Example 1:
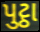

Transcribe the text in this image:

પુટ્ઠા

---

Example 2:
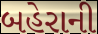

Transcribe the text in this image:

બહેરાની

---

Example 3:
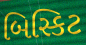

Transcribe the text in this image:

બિસ્કિટ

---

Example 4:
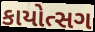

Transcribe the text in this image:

કાયોત્સગ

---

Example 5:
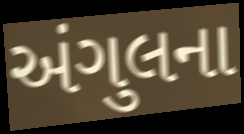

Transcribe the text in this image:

અંગુલના